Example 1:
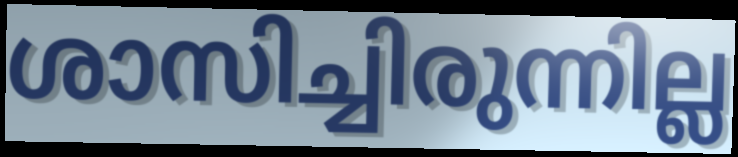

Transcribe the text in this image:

ശാസിച്ചിരുന്നില്ല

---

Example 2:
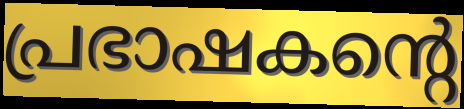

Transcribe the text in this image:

പ്രഭാഷകന്റെ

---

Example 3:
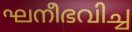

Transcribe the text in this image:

ഘനീഭവിച്ച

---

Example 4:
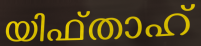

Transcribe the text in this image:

യിഫ്താഹ്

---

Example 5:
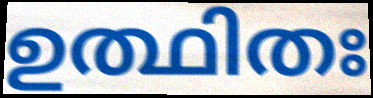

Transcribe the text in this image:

ഉത്ഥിതഃ